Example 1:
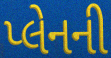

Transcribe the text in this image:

પ્લેનની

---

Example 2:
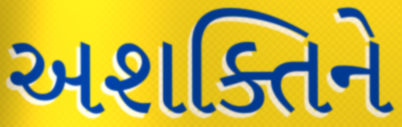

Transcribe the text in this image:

અશક્તિને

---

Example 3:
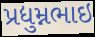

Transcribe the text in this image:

પ્રદ્યુમ્નભાઇ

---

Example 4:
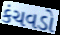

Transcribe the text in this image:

કંચવડો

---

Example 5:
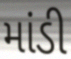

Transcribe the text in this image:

માંડી